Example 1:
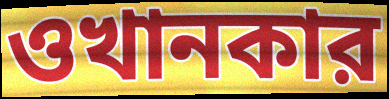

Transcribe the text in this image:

ওখানকার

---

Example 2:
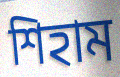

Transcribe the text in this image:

শিহাম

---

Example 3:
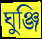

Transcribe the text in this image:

ঘুঞ্জি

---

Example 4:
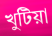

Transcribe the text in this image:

খুটিয়া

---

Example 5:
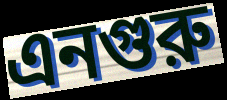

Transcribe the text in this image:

এনগুরু